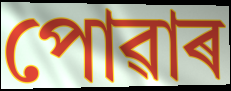
পোৱাৰ